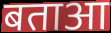
बताआ